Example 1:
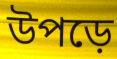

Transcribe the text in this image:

উপড়ে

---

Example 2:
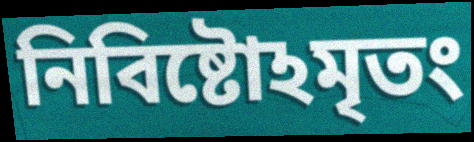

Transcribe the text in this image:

নিবিষ্টোঽমৃতং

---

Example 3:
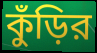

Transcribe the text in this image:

কুঁড়ির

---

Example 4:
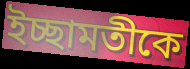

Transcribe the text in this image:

ইচ্ছামতীকে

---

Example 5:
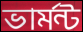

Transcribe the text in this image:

ভার্মন্ট